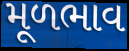
મૂળભાવ